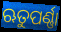
ଋତୁପର୍ଣ୍ଣା